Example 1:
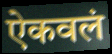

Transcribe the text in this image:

ऐकवलं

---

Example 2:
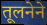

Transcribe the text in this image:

तूलनेने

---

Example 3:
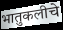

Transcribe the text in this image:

भातुकलीचे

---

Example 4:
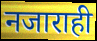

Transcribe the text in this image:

नजाराही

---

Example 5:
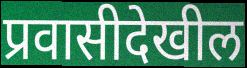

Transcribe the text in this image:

प्रवासीदेखील